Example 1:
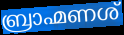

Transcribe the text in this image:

ബ്രാഹ്മണശ്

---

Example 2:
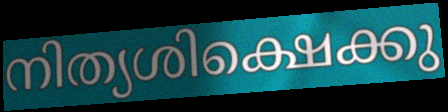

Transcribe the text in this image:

നിത്യശിക്ഷെക്കു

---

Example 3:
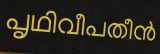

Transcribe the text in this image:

പൃഥിവീപതീൻ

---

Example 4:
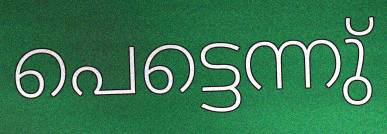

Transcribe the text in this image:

പെട്ടെന്നു്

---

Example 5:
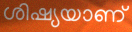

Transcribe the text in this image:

ശിഷ്യയാണ്